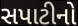
સપાટીનો